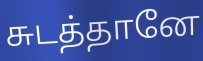
சுடத்தானே